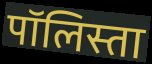
पॉलिस्ता